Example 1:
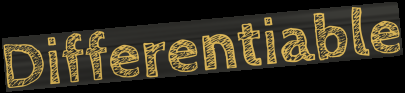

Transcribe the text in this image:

Differentiable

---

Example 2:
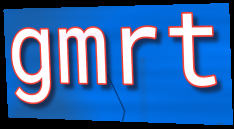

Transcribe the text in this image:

gmrt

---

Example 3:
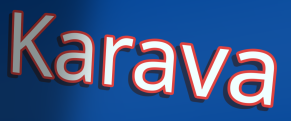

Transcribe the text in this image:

Karava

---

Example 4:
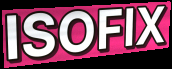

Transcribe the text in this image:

ISOFIX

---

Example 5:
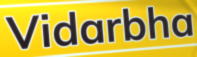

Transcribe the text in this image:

Vidarbha